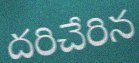
దరిచేరిన